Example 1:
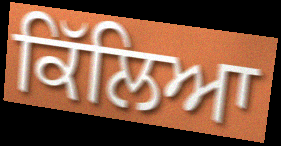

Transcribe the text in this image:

ਕਿੱਲਿਆ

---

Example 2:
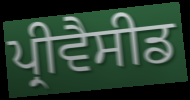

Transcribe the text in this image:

ਪ੍ਰੀਵੈਸੀਡ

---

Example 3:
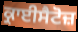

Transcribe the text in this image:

ਕ੍ਰਾਈਸੈਟੋਜ਼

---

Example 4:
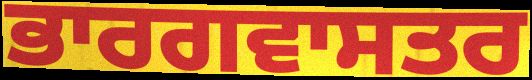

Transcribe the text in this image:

ਭਾਰਗਵਾਸਤਰ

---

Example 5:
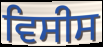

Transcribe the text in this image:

ਵਿਸੀਸ